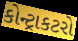
કોન્ટ્રાકટરો